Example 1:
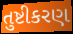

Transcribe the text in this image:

તુષ્ટીકરણ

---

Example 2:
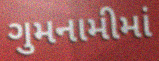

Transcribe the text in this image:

ગુમનામીમાં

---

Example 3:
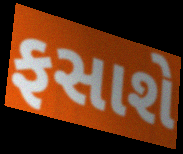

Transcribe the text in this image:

ફસાશે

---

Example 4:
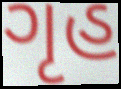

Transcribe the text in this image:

ગૃહ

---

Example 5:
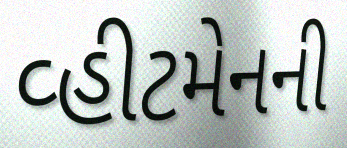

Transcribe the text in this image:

વ્હીટમેનની